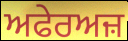
ਅਫੇਰਅਜ਼